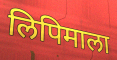
लिपिमाला